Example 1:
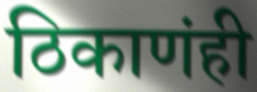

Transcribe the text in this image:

ठिकाणंही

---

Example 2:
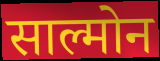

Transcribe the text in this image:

साल्मोन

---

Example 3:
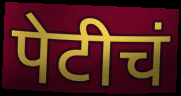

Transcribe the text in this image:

पेटीचं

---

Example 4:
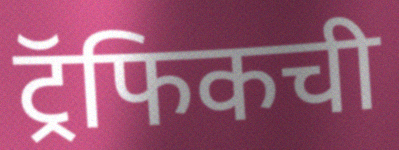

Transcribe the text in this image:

ट्रॅफिकची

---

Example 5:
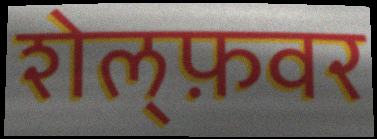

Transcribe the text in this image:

शेल्फ़वर